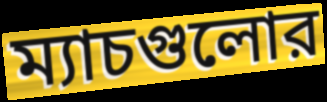
ম্যাচগুলোর